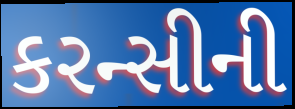
કરન્સીની